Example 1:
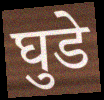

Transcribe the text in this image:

घुडे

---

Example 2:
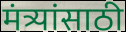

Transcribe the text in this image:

मंत्र्यांसाठी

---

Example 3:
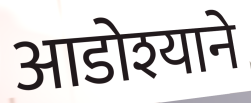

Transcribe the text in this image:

आडोश्याने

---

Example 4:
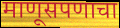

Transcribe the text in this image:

माणूसपणाचा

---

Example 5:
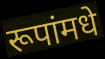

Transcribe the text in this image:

रूपांमधे